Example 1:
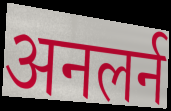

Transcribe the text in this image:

अनलर्न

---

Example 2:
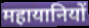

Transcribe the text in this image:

महायानियों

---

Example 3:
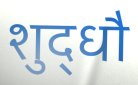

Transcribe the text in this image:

शुद्धौ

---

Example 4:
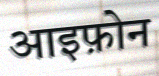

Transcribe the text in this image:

आइफ़ोन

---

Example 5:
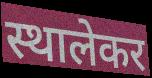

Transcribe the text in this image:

स्थालेकर